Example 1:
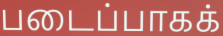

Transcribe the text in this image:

படைப்பாகக்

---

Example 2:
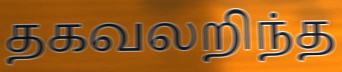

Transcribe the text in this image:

தகவலறிந்த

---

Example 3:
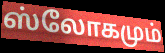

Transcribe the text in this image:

ஸ்லோகமும்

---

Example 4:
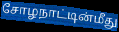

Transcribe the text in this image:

சோழநாட்டின்மீது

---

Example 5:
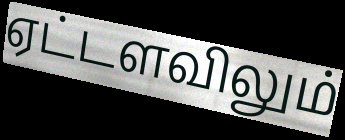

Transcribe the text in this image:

ஏட்டளவிலும்